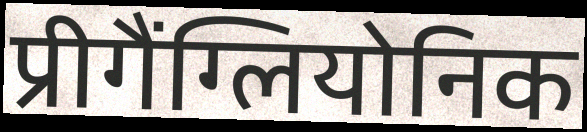
प्रीगैंग्लियोनिक